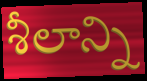
శీలాన్ని